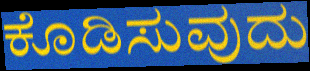
ಕೊಡಿಸುವುದು